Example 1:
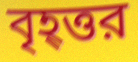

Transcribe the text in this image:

বৃহ্ত্তর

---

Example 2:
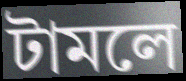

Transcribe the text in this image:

টামলে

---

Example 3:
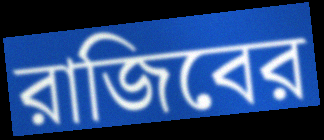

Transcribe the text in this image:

রাজিবের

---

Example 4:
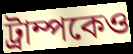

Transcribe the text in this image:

ট্রাম্পকেও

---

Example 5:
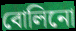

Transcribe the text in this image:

বোলিনো